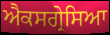
ਐਕਸਗ੍ਰੇਸਿਆ